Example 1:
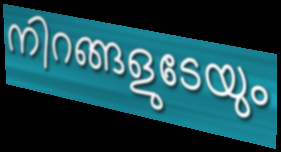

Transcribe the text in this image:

നിറങ്ങളുടേയും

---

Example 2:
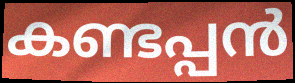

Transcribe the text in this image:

കണ്ടപ്പൻ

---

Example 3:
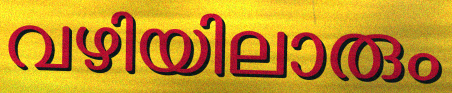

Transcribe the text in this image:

വഴിയിലാരും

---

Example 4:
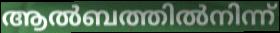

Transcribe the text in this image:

ആൽബത്തിൽനിന്ന്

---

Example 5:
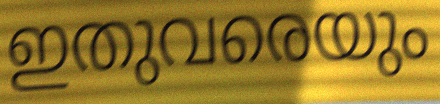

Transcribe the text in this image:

ഇതുവരെയും